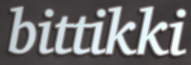
bittikki